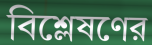
বিশ্লেষণের